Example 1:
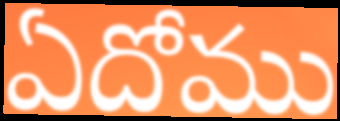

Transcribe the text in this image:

ఏదోము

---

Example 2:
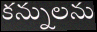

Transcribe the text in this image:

కన్నులను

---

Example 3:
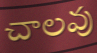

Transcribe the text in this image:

చాలవు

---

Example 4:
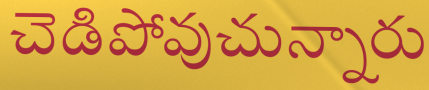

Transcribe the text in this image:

చెడిపోవుచున్నారు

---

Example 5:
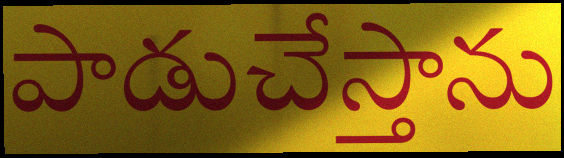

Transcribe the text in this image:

పాడుచేస్తాను